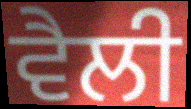
ਵੈਲੀ